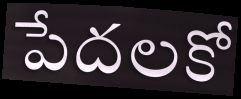
పేదలకో